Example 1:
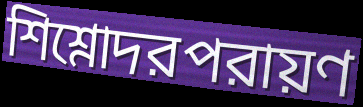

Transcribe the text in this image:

শিশ্নোদরপরায়ণ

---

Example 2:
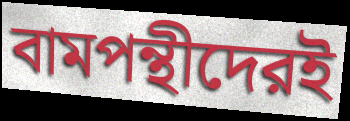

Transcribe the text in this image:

বামপন্থীদেরই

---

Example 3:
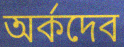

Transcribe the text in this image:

অর্কদেব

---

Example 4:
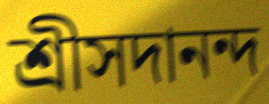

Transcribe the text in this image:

শ্রীসদানন্দ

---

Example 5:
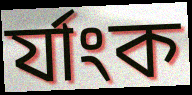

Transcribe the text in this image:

র্যাংক